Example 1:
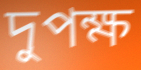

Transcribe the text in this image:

দুপক্ষ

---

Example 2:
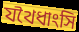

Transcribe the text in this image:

যথৈধাংসি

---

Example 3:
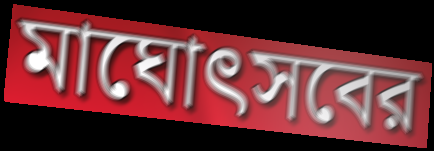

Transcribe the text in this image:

মাঘোৎসবের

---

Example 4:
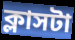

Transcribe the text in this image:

ক্লাসটা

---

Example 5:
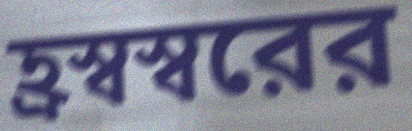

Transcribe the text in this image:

হ্রস্বস্বরের